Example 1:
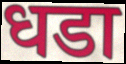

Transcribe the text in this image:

धडा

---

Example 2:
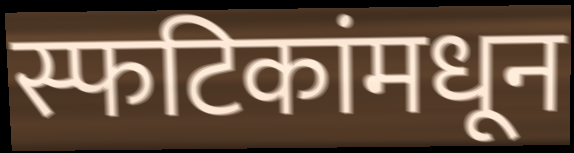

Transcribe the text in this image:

स्फटिकांमधून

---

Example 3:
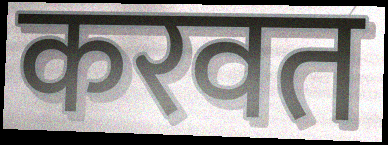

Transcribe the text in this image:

करवत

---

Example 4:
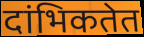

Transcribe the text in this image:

दांभिकतेत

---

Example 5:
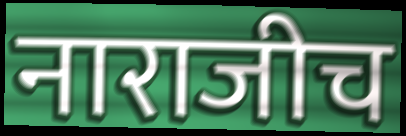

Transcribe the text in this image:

नाराजीच